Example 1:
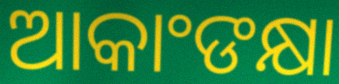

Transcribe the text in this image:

ଆକାଂଙକ୍ଷା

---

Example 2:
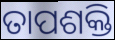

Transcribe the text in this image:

ତାପଶକ୍ତି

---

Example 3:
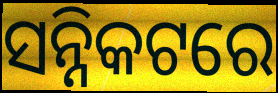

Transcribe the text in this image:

ସନ୍ନିକଟରେ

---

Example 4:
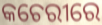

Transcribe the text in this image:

କଚେରୀରେ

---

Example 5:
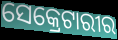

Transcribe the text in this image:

ସେକ୍ରେଟାରୀର